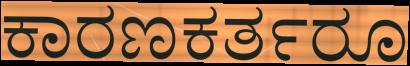
ಕಾರಣಕರ್ತರೂ